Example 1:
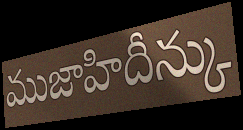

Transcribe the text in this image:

ముజాహిదీన్కు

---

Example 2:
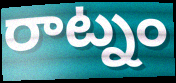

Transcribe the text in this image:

రాట్నం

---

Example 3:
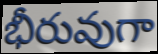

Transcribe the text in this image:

భీరువుగా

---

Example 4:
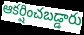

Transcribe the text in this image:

ఆకర్షించబడ్డారు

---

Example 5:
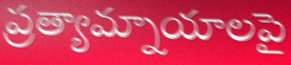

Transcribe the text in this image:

ప్రత్యామ్నాయాలపై